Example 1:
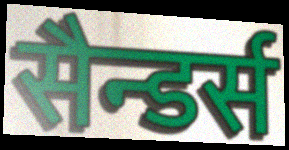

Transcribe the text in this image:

सैन्डर्स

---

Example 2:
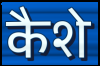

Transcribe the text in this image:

कैशे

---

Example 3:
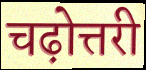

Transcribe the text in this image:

चढ़ोत्तरी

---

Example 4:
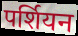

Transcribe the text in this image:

पर्शियन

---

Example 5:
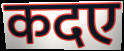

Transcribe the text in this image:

कदए